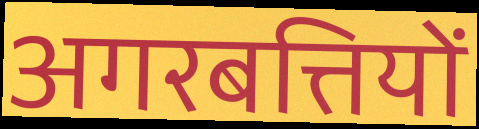
अगरबत्तियों